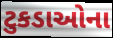
ટુકડાઓના